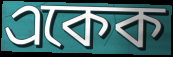
একেক